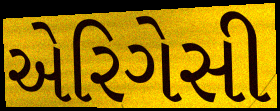
એરિગેસી